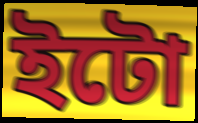
ইটো